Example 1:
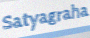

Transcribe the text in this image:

Satyagraha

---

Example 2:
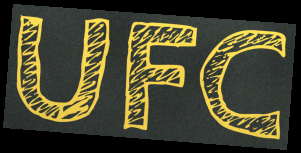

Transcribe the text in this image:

UFC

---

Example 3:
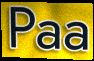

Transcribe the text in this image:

Paa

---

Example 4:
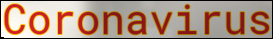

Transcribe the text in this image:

Coronavirus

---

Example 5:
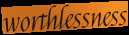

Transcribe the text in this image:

worthlessness